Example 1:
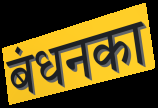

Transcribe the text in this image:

बंधनका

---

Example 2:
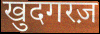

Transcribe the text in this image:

खुदगरज़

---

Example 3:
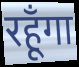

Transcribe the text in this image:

रहूँगा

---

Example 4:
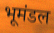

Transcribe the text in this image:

भूमंडल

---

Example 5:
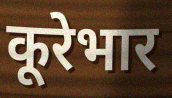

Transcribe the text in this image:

कूरेभार